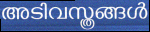
അടിവസ്ത്രങ്ങൾ